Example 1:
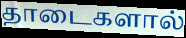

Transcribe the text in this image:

தாடைகளால்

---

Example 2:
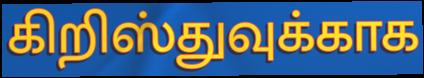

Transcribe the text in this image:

கிறிஸ்துவுக்காக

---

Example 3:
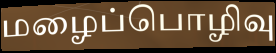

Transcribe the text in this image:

மழைப்பொழிவு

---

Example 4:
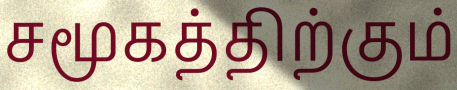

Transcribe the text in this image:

சமூகத்திற்கும்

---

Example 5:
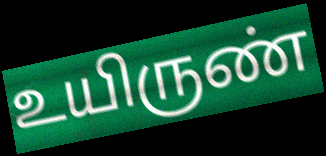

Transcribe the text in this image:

உயிருண்